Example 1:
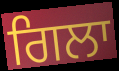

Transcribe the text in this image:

ਗਿਲਾ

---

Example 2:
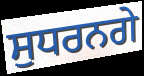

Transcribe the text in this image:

ਸੁਧਰਨਗੇ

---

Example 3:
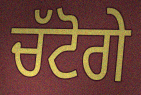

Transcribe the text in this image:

ਚੱਟੋਗੇ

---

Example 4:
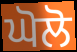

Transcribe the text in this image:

ਘੋਲੋ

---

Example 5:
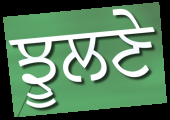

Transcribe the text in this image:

ਝੂਲਣੇ